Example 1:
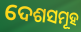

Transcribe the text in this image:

ଦେଶସମୂହ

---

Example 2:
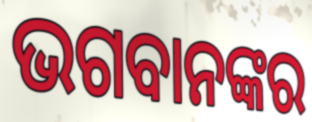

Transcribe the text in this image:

ଭଗବାନଙ୍କର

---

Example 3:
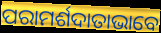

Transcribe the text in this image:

ପରାମର୍ଶଦାତାଭାବେ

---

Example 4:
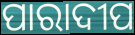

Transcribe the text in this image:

ପାରାଦୀପ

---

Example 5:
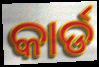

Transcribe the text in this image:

କାର୍ଡ